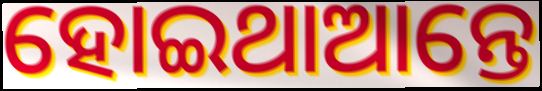
ହୋଇଥାଆନ୍ତେ